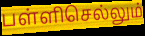
பள்ளிசெல்லும்